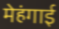
मेहंगाई